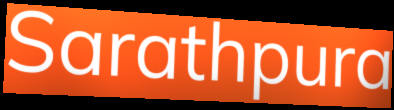
Sarathpura